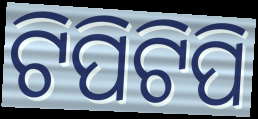
ଟିପିଟିପି